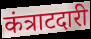
कंत्राटदारी